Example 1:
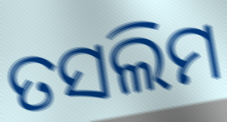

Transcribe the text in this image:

ତସଲିମ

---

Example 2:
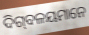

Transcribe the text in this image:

ଦିଗ୍‌ବଳୟମାନେ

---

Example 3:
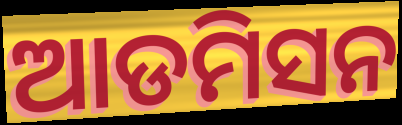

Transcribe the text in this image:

ଆଡମିସନ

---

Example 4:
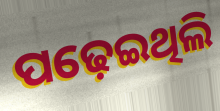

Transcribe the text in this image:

ପଢ଼େଇଥିଲି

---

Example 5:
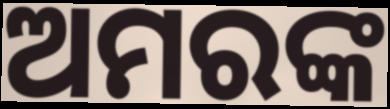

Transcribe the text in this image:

ଅମରଙ୍କ